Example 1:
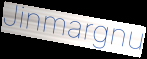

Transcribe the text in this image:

Jinmargnu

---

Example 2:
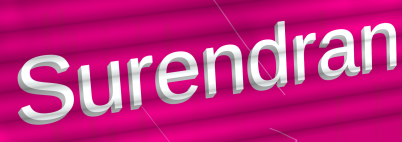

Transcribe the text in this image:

Surendran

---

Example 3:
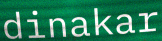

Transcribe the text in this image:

dinakar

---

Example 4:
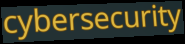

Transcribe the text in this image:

cybersecurity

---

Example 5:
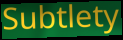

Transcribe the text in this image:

Subtlety